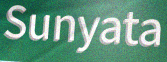
Sunyata